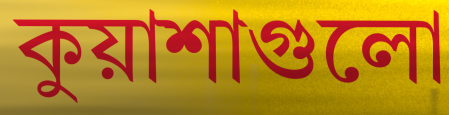
কুয়াশাগুলো